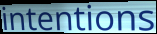
intentions